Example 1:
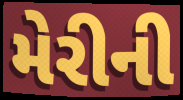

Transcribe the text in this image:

મેરીની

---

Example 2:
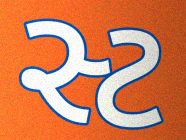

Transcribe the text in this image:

સ્ટ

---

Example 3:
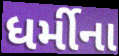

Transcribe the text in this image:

ધર્મીના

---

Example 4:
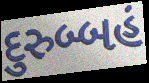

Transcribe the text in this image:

દુરુબ્બહં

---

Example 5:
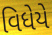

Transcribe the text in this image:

વિધેયે